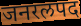
जनरलपद